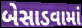
બેસાડવામાં